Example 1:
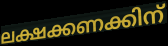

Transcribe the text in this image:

ലക്ഷക്കണക്കിന്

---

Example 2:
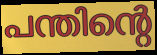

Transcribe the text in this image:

പന്തിന്റെ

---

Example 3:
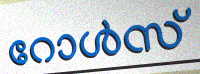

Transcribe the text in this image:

റോൾസ്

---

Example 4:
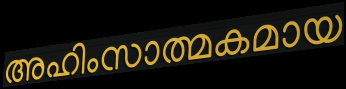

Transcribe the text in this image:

അഹിംസാത്മകമായ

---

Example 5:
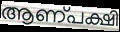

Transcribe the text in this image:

ആണ്പക്ഷി